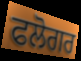
ਫਲੋਗਰ